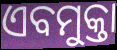
ଏବମୁକ୍ତା